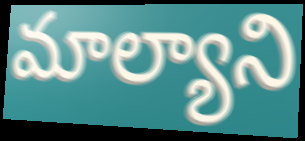
మాల్యాని